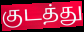
குடத்து